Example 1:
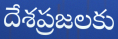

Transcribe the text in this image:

దేశప్రజలకు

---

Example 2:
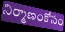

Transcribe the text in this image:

నిర్మాణంకోసం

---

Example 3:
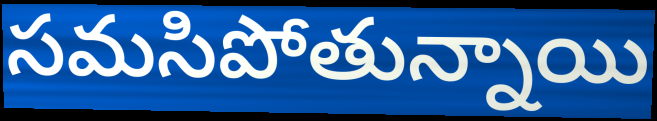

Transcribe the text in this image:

సమసిపోతున్నాయి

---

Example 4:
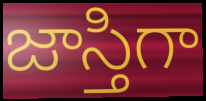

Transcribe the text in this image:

జాస్తిగా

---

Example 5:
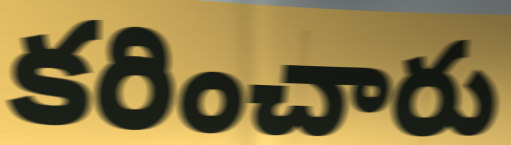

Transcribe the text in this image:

కరించారు